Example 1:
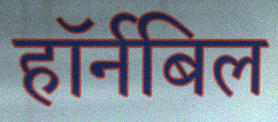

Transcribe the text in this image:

हॉर्नबिल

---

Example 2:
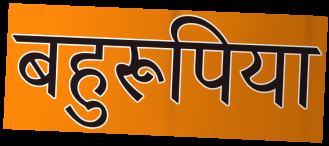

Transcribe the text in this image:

बहुरूपिया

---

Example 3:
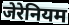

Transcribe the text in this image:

जेरेनियम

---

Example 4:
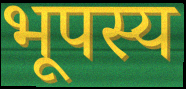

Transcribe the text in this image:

भूपस्य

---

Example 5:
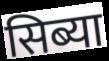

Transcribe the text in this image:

सिब्या